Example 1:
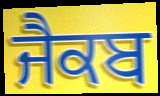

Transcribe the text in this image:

ਜੈਕਬ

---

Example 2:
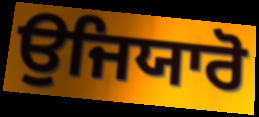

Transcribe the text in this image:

ਉਜਿਯਾਰੋ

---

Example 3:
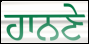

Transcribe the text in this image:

ਹਾਨਣੇ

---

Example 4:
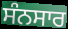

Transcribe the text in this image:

ਸੰਨਸਾਰ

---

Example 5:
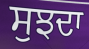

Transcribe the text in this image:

ਸੁਝਦਾ